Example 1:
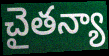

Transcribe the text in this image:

చైతన్యా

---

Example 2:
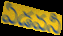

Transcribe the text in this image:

ఏడవనీ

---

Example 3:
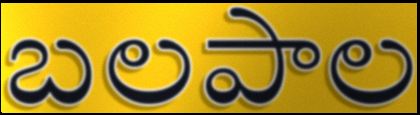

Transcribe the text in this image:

బలపాల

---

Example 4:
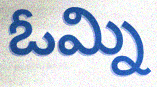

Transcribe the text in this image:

ఓమ్ని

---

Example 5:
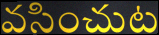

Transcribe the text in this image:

వసించుట